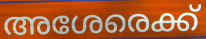
അശേരെക്ക്